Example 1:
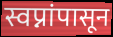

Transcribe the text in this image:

स्वप्नांपासून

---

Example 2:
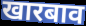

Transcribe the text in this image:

खारबाव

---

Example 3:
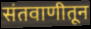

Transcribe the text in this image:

संतवाणीतून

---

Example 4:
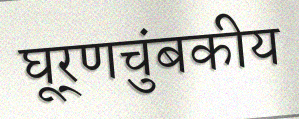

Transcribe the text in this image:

घूर्णचुंबकीय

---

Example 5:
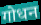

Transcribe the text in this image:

गोधन